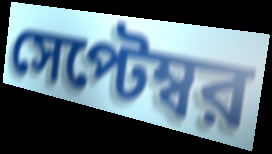
সেপ্টেম্বর